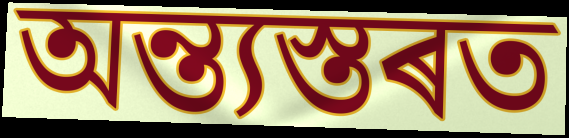
অন্ত্যস্তৰত